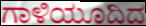
ಗಾಳಿಯೂದಿದ